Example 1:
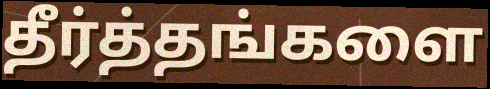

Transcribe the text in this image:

தீர்த்தங்களை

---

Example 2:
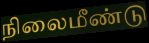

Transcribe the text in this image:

நிலைமீண்டு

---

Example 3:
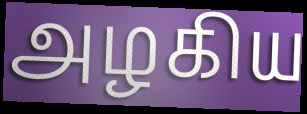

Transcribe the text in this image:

அழகிய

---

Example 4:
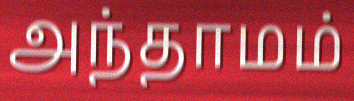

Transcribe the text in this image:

அந்தாமம்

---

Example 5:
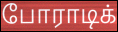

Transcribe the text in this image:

போராடிக்